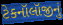
ટેકનૉલૉજીનું